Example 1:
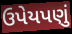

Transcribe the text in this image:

ઉપેયપણું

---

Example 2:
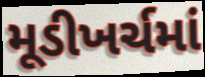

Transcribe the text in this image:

મૂડીખર્ચમાં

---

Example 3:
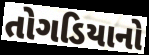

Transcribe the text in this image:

તોગડિયાનો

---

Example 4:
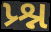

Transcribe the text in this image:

પ્ર્શ્ન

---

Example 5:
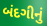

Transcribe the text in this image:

બંદગીનું